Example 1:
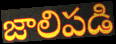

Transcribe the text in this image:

జాలిపడి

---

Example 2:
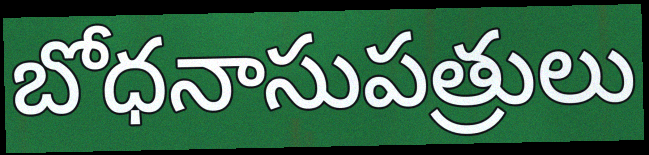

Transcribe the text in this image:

బోధనాసుపత్రులు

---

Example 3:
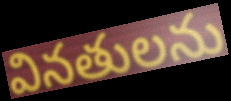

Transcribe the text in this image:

వినతులను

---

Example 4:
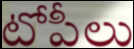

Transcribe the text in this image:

టోపీలు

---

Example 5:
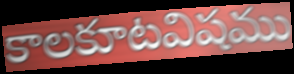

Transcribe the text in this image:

కాలకూటవిషము